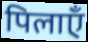
पिलाएँ